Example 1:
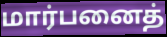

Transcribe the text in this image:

மார்பனைத்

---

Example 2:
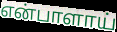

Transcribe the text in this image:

என்பாளாய்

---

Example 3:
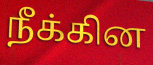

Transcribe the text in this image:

நீக்கின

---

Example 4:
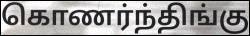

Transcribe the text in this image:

கொணர்ந்திங்கு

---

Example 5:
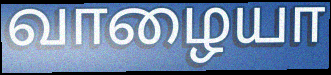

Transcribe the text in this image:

வாழையா